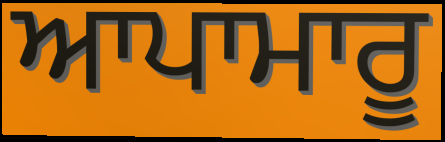
ਆਪਾਮਾਰੂ